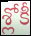
శ్లోకీ